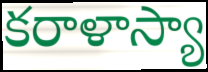
కరాళాస్యా